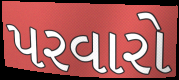
પરવારો